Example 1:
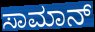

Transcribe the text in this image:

ಸಾಮಾನ್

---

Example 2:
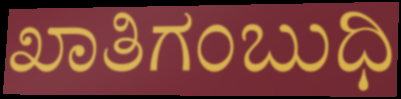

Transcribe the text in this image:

ಖಾತಿಗಂಬುಧಿ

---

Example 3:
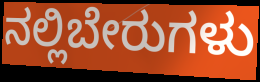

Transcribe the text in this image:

ನಲ್ಲಿಬೇರುಗಳು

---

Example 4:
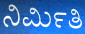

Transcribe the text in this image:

ನಿರ್ಮಿತಿ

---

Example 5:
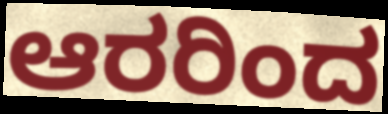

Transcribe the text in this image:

ಆರರಿಂದ